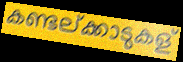
കണ്ടല്ക്കാടുകള്